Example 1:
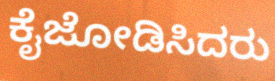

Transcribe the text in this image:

ಕೈಜೋಡಿಸಿದರು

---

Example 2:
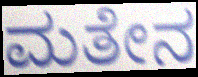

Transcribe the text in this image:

ಮತೇನ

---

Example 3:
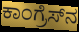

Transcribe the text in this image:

ಕಾಂಗ್ರೆಸ್‍ನ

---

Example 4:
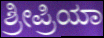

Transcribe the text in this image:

ಶ್ರೀಪ್ರಿಯಾ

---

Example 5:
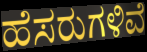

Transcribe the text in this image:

ಹೆಸರುಗಳಿವೆ